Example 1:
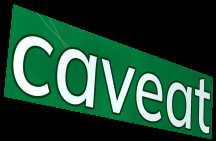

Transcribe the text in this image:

caveat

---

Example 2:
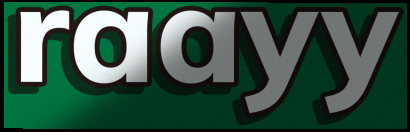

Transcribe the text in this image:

raayy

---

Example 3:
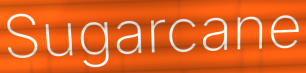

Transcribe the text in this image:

Sugarcane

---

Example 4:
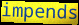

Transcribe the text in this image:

impends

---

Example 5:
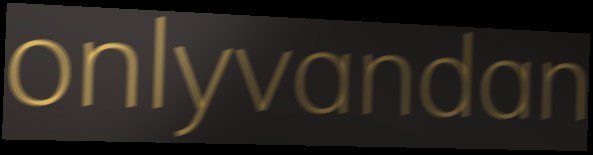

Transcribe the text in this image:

onlyvandan